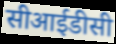
सीआईडीसी